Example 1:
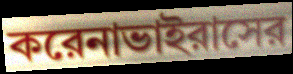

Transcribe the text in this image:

করেনাভাইরাসের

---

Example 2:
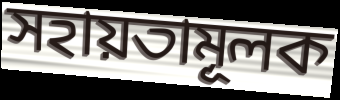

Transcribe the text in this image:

সহায়তামূলক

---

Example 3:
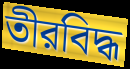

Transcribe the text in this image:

তীরবিদ্ধ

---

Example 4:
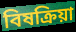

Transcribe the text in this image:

বিষক্রিয়া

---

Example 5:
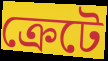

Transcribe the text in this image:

ক্রেটে